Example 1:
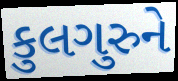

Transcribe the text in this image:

કુલગુરુને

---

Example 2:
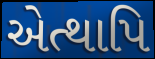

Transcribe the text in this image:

એત્થાપિ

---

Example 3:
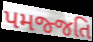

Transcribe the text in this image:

પમજ્જતિ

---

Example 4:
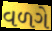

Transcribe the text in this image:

વળગે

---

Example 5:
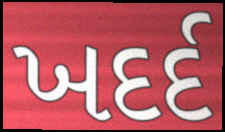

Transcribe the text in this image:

ખદર્દ